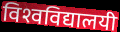
विश्वविद्यालयी